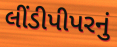
લીંડીપીપરનું